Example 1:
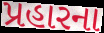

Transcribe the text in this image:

પ્રહારના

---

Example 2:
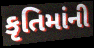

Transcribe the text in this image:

કૃતિમાંની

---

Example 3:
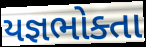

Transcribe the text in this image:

યજ્ઞભોક્તા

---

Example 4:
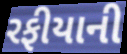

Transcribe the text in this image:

રફીયાની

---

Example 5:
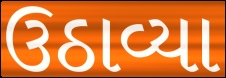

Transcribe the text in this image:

ઉઠાવ્યા